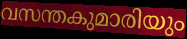
വസന്തകുമാരിയും